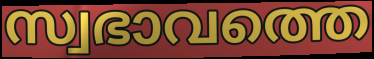
സ്വഭാവത്തെ